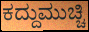
ಕದ್ದುಮುಚ್ಚಿ